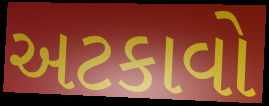
અટકાવો